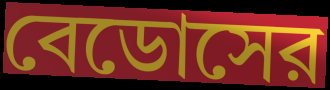
বেডোসের